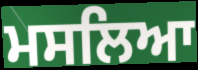
ਮਸਲਿਆ